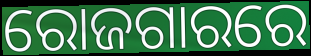
ରୋଜଗାରରେ